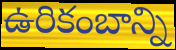
ఉరికంబాన్ని